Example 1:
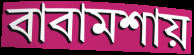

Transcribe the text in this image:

বাবামশায়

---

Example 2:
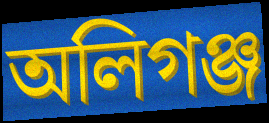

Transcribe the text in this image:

অলিগঞ্জ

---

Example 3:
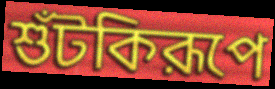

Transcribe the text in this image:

শুঁটকিরূপে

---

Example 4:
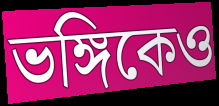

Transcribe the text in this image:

ভঙ্গিকেও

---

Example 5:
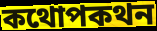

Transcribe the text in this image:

কথোপকথন